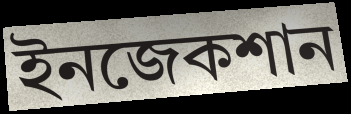
ইনজেকশান